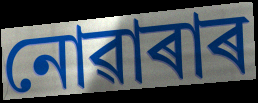
নোৱাৰাৰ